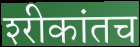
श्रीकांतच